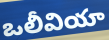
ఒలీవియా